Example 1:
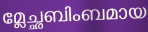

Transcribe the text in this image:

മ്ലേച്ഛബിംബമായ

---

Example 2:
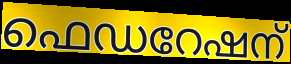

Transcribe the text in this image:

ഫെഡറേഷന്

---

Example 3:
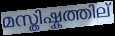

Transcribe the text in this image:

മസ്തിഷ്കത്തില്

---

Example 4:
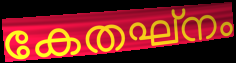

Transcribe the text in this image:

കേതഘ്നം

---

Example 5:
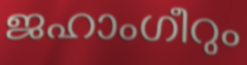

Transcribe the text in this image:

ജഹാംഗീറും